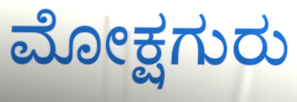
ಮೋಕ್ಷಗುರು